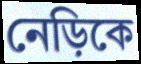
নেড়িকে